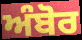
ਅੰਬੋਰ